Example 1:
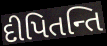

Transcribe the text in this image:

દીપિતન્તિ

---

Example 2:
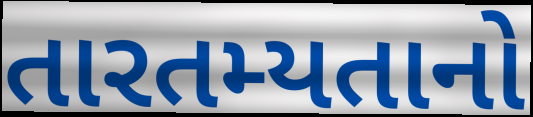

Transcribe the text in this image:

તારતમ્યતાનો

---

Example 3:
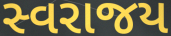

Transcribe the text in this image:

સ્વરાજય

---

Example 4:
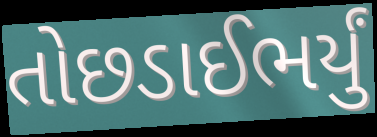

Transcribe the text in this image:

તોછડાઈભર્યું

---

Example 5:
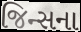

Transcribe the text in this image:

જિન્સના